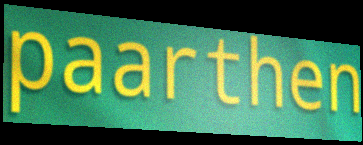
paarthen